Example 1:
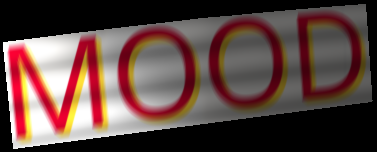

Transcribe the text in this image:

MOOD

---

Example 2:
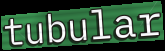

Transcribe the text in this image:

tubular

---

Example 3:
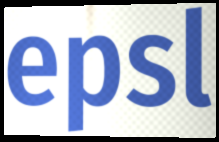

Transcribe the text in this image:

epsl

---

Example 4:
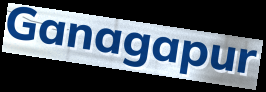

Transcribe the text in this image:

Ganagapur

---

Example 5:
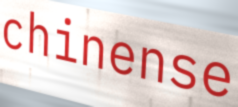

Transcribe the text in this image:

chinense